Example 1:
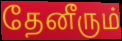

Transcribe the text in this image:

தேனீரும்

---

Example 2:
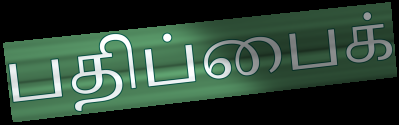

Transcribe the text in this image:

பதிப்பைக்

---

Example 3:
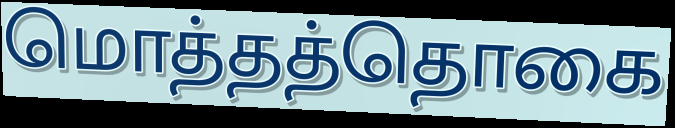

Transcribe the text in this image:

மொத்தத்தொகை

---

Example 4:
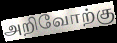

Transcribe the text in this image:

அறிவோற்கு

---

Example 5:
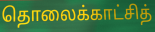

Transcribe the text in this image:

தொலைக்காட்சித்